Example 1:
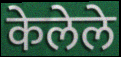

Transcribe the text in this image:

केलेले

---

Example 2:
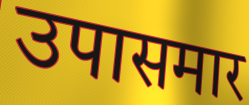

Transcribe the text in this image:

उपासमार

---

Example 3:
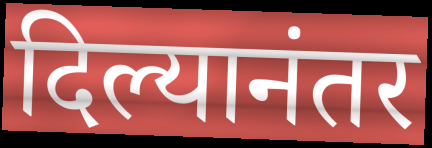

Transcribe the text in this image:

दिल्यानंतर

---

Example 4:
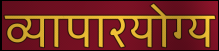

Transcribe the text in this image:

व्यापारयोग्य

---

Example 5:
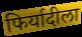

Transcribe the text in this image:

फिर्यादीला